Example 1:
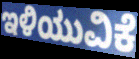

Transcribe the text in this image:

ಇಳಿಯುವಿಕೆ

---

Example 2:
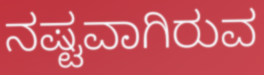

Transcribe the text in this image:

ನಷ್ಟವಾಗಿರುವ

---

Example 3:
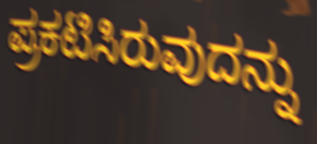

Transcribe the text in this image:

ಪ್ರಕಟಿಸಿರುವುದನ್ನು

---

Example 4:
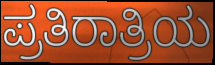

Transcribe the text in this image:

ಪ್ರತಿರಾತ್ರಿಯ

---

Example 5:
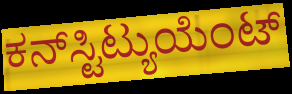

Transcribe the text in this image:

ಕನ್‌ಸ್ಟಿಟ್ಯುಯೆಂಟ್